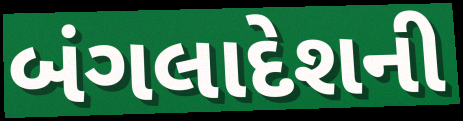
બંગલાદેશની